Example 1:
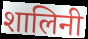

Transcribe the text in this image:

शालिनी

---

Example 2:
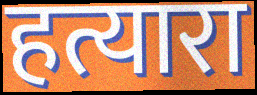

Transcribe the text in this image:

हत्यारा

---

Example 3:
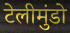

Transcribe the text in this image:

टेलीमुंडो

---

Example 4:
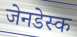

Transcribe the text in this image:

जेनडेस्क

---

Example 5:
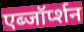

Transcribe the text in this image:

एब्जॉर्प्शन